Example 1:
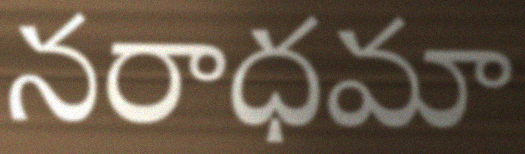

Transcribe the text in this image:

నరాధమా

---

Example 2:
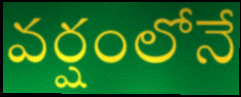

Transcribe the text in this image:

వర్షంలోనే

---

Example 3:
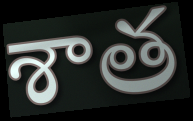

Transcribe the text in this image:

శాత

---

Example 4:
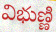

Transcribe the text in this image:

విభుణ్ణి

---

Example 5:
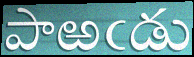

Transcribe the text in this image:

పాఱఁడు